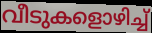
വീടുകളൊഴിച്ച്